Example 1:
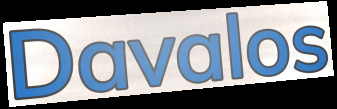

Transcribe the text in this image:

Davalos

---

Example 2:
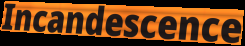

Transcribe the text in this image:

Incandescence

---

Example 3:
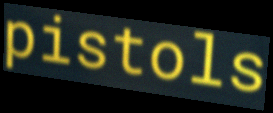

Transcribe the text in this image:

pistols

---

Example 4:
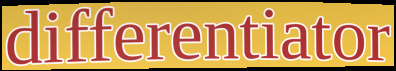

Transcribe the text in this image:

differentiator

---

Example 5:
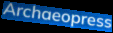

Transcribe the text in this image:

Archaeopress